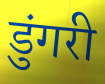
डुंगरी